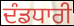
ਦੰਡਧਾਰੀ